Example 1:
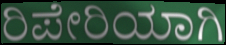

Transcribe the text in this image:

ರಿಪೇರಿಯಾಗಿ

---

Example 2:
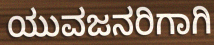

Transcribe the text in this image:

ಯುವಜನರಿಗಾಗಿ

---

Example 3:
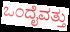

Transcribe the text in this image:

ಒಂದೈವತ್ತು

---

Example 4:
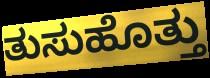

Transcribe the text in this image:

ತುಸುಹೊತ್ತು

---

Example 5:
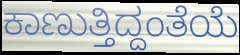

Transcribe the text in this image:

ಕಾಣುತ್ತಿದ್ದಂತೆಯೆ